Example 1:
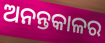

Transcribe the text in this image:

ଅନନ୍ତକାଳର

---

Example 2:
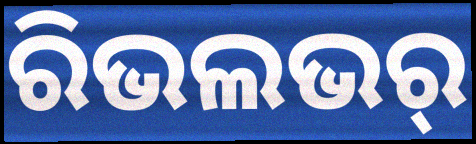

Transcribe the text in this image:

ରିଭଲଭର୍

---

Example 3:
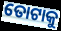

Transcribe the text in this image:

ତୋଟାକୁ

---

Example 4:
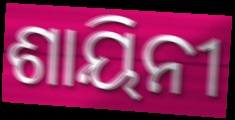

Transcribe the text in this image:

ଶାୟିନୀ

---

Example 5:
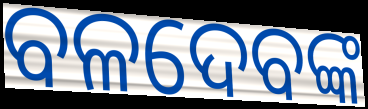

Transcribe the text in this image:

ବଳଦେବଙ୍କ